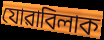
যোৱাবিলাক